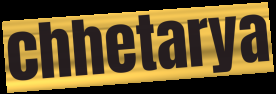
chhetarya